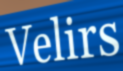
Velirs